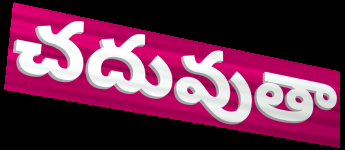
చదువుతా